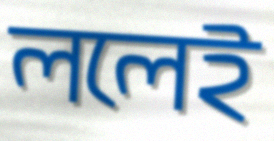
ললেই